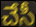
చేసీ